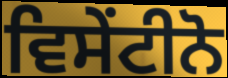
ਵਿਸੇਂਟੀਨੋ